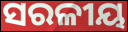
ସରଳୀୟ